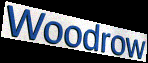
Woodrow